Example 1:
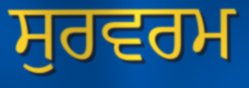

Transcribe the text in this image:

ਸੁਰਵਰਮ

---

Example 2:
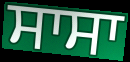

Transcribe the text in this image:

ਸਾਸਾ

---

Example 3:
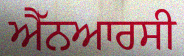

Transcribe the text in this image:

ਐੱਨਆਰਸੀ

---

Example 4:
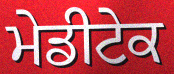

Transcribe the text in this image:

ਮੇਡੀਟੇਕ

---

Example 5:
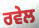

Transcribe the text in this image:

ਰਵੇਲ